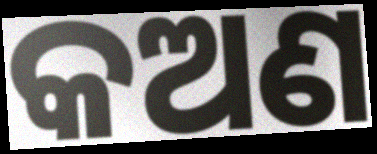
କଅଣ